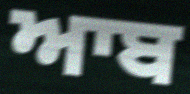
ਆਬ